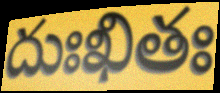
దుఃఖితః